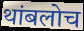
थांबलोच